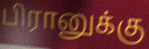
பிரானுக்கு